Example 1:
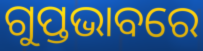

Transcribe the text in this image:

ଗୁପ୍ତଭାବରେ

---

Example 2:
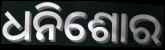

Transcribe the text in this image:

ଧନିଶୋର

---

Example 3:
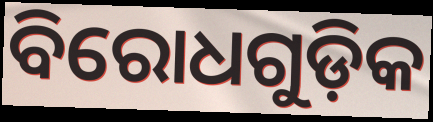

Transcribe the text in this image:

ବିରୋଧଗୁଡ଼ିକ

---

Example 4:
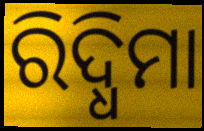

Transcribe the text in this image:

ରିଦ୍ଧିମା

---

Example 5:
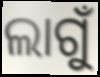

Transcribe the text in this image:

ଲାଗୁଁ